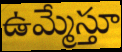
ఉమ్మేస్తూ